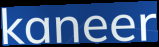
kaneer